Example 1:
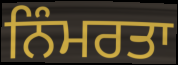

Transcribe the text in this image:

ਨਿੰਮਰਤਾ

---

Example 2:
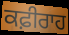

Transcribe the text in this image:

ਕਫ਼ੀਰਾਹ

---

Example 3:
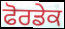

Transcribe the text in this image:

ਫੋਰਡੇਕ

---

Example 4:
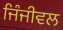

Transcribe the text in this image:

ਜਿੰਜੀਵਲ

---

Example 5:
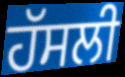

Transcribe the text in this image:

ਹੱਸਲੀ